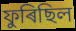
ফুৰিছিল